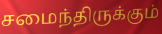
சமைந்திருக்கும்